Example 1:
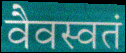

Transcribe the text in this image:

वैवस्वतं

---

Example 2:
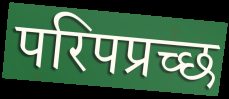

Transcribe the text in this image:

परिपप्रच्छ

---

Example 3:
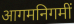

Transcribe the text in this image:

आगमनिगमीं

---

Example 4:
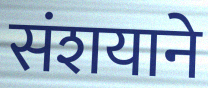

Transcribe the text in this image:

संशयाने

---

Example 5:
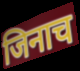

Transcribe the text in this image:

जिनाच